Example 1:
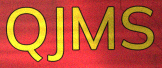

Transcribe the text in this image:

QJMS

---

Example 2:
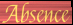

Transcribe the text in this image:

Absence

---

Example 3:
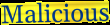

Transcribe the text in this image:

Malicious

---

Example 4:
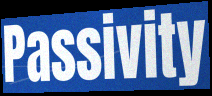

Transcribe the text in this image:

Passivity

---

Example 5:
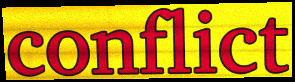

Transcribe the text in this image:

conflict